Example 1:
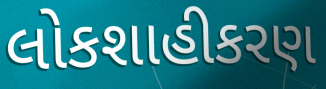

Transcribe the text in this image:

લોકશાહીકરણ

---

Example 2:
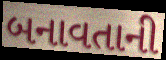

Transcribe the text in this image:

બનાવતાની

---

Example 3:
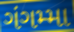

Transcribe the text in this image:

ગંગમ્મા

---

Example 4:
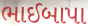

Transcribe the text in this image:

ભાઈબાપા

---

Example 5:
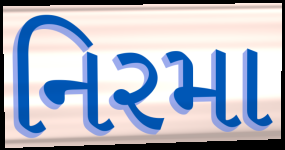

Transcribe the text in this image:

નિરમા